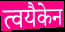
त्वयैकेन